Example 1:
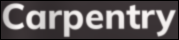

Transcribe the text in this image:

Carpentry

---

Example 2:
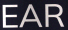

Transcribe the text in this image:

EAR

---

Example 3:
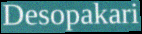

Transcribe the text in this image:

Desopakari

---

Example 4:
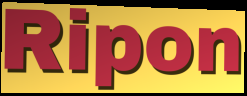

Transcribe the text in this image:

Ripon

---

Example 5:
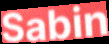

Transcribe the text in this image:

Sabin